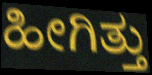
ಹೀಗಿತ್ತು